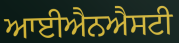
ਆਈਐਨਐਸਟੀ